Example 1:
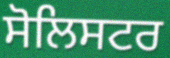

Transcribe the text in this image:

ਸੋਲਿਸਟਰ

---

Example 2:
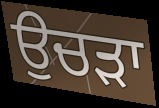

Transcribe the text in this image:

ਉਚੜਾ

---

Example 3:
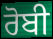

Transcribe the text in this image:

ਰੋਬੀ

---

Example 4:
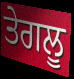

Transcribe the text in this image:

ਤੇਗਲੂ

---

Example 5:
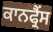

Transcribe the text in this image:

ਕਾਨਫ੍ਰੈਂਸ